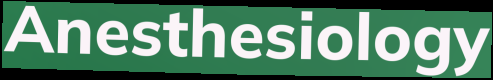
Anesthesiology